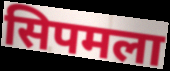
सिपमला